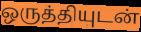
ஒருத்தியுடன்